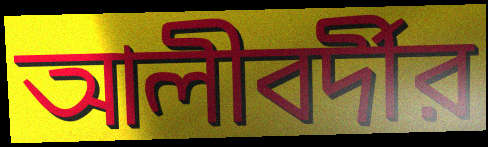
আলীবর্দীর